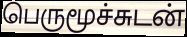
பெருமூச்சுடன்